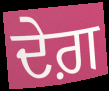
ਦੇਗ਼